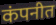
कंपनीत